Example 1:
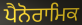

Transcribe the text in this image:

ਪੈਨੋਰਾਮਿਕ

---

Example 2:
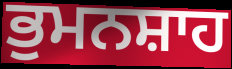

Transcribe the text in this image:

ਭੁਮਨਸ਼ਾਹ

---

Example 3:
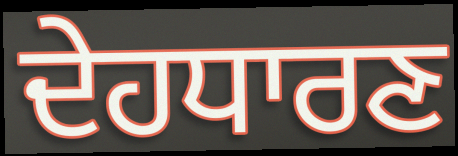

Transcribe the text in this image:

ਦੇਹਧਾਰਣ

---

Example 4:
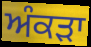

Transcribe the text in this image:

ਅੰਕੜਾ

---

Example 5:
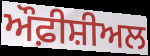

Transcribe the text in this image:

ਔਫ਼ੀਸ਼ੀਅਲ